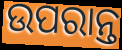
ଉପରାନ୍ତ